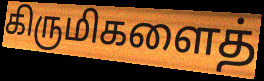
கிருமிகளைத்